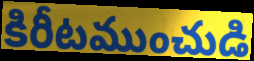
కిరీటముంచుడి